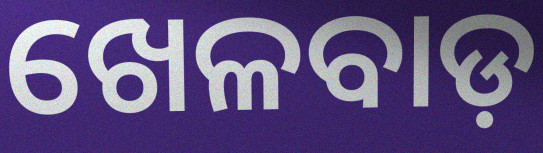
ଖେଳବାଡ଼